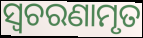
ସ୍ଵଚରଣାମୃତ